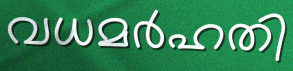
വധമർഹതി